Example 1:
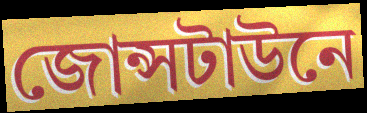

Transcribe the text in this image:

জোন্সটাউনে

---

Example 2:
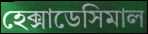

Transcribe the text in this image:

হেক্সাডেসিমাল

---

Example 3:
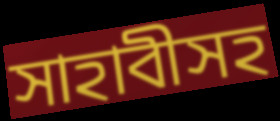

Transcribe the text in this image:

সাহাবীসহ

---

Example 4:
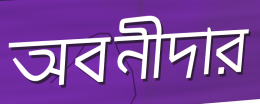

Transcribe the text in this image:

অবনীদার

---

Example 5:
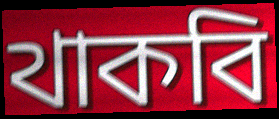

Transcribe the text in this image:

থাকবি